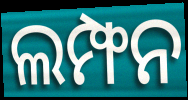
ଲମ୍ଫନ